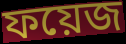
ফয়েজ